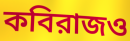
কবিরাজও